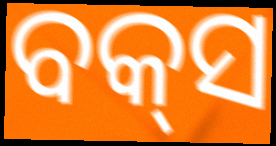
ବକ୍‌ସ